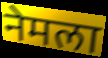
नेमला